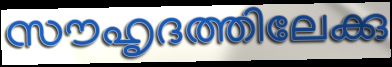
സൗഹൃദത്തിലേക്കു